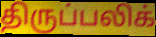
திருப்பலிக்